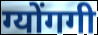
ग्योंगगी